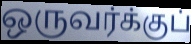
ஒருவர்க்குப்